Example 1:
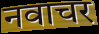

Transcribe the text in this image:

नवाचर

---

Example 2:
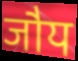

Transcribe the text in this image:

जौय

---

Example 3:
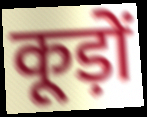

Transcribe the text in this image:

कूड़ों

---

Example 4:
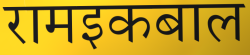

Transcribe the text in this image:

रामइकबाल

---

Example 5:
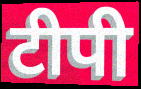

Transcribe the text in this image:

टीपी